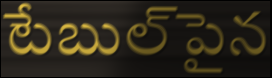
టేబుల్‌పైన